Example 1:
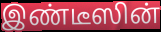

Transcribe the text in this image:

இண்டீஸின்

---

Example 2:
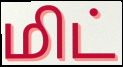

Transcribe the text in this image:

மிட்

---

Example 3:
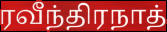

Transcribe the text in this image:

ரவீந்திரநாத்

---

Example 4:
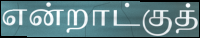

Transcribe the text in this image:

என்றாட்குத்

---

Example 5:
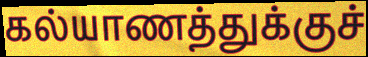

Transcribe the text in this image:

கல்யாணத்துக்குச்